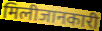
मिलीजानकारी